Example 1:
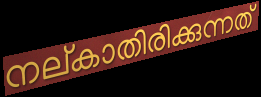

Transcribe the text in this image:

നല്കാതിരിക്കുന്നത്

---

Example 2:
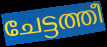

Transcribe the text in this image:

ചേട്ടത്തീ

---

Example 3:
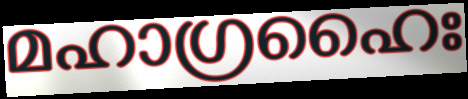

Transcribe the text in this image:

മഹാഗ്രഹൈഃ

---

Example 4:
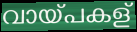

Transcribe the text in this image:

വായ്പകള്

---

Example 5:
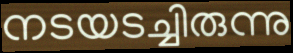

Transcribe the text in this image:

നടയടച്ചിരുന്നു